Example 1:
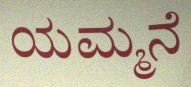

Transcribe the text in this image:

ಯಮ್ಮನೆ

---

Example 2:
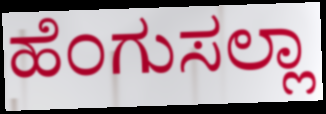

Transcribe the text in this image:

ಹೆಂಗುಸಲ್ಲಾ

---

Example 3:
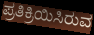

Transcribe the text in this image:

ಪ್ರತಿಕ್ರಿಯಿಸಿರುವ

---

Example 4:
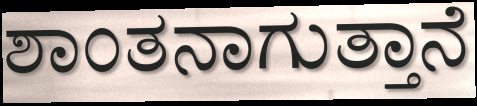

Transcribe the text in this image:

ಶಾಂತನಾಗುತ್ತಾನೆ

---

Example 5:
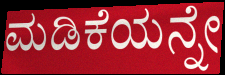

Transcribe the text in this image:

ಮಡಿಕೆಯನ್ನೇ